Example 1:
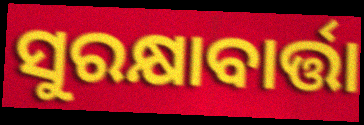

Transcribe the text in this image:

ସୁରକ୍ଷାବାର୍ତ୍ତା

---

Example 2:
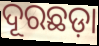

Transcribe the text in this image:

ଦୂରଛଡ଼ା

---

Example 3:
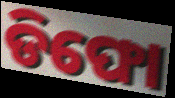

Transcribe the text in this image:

ଡିଫୋ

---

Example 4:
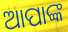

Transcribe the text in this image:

ଆପାଙ୍କ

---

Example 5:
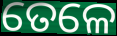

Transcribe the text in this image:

ତେଳେ